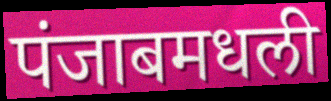
पंजाबमधली